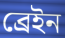
ব্রেইন